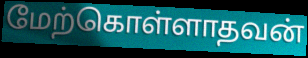
மேற்கொள்ளாதவன்